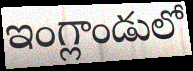
ఇంగ్లాండులో